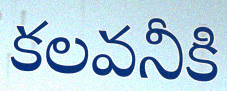
కలవనీకి